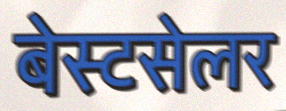
बेस्टसेलर